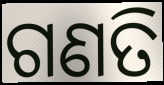
ଗଣତି